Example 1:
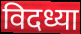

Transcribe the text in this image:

विदध्या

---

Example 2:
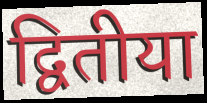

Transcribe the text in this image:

द्वितीया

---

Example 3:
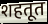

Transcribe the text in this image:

शहतूत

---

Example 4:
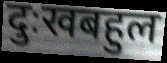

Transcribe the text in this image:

दुःखबहुल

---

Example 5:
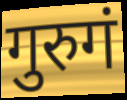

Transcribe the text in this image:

गुरुगं